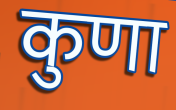
कुणा